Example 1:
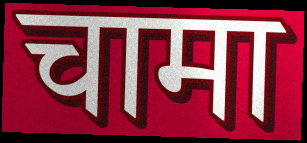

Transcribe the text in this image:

चामा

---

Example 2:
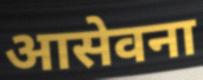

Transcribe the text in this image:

आसेवना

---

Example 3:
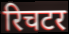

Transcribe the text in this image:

रिचटर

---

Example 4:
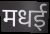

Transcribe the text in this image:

मधई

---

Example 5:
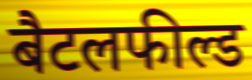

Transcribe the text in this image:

बैटलफील्ड